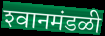
श्वानमंडळी